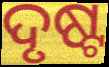
ଦୃଷ୍ଟ